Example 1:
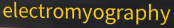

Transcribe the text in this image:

electromyography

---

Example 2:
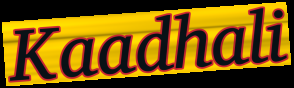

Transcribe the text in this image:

Kaadhali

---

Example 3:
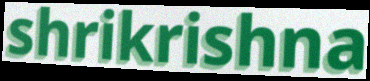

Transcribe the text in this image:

shrikrishna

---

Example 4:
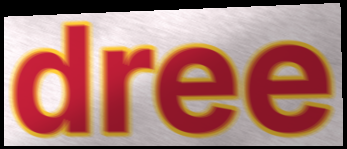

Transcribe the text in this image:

dree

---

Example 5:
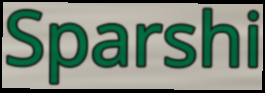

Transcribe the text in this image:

Sparshi